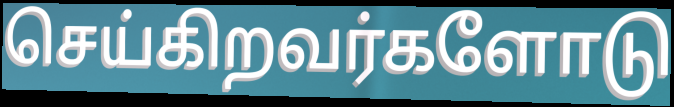
செய்கிறவர்களோடு